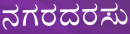
ನಗರದರಸು